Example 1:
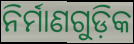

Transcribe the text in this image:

ନିର୍ମାଣଗୁଡ଼ିକ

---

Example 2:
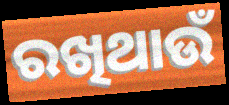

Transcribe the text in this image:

ରଖିଥାଉଁ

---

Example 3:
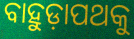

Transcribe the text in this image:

ବାହୁଡ଼ାପଥକୁ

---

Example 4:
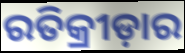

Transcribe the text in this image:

ରତିକ୍ରୀଡ଼ାର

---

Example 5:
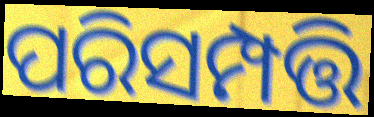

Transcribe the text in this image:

ପରିସମ୍ପତ୍ତି